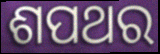
ଶପଥର